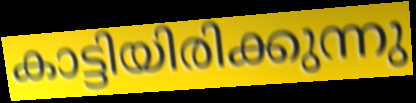
കാട്ടിയിരിക്കുന്നു